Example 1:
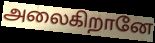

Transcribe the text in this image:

அலைகிறானே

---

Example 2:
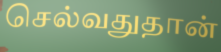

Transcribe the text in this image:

செல்வதுதான்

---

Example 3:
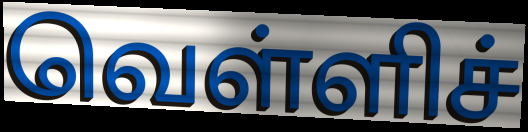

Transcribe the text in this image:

வெள்ளிச்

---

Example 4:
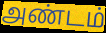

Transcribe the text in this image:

அண்டம்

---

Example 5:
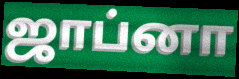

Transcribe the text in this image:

ஜாப்னா